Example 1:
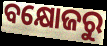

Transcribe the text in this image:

ବକ୍ଷୋଜରୁ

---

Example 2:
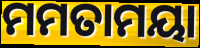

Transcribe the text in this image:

ମମତାମୟା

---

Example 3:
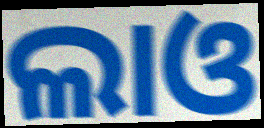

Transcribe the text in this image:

ଲାଓ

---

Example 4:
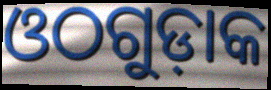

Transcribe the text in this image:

ଓଠଗୁଡ଼ାକ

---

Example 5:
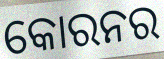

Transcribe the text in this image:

କୋରନର